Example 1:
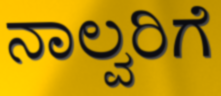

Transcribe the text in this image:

ನಾಲ್ವರಿಗೆ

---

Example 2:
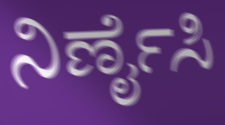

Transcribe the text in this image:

ನಿರ್ಣೈಸಿ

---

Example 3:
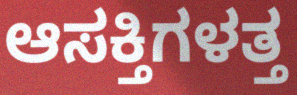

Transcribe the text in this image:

ಆಸಕ್ತಿಗಳತ್ತ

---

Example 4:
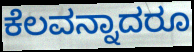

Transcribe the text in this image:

ಕೆಲವನ್ನಾದರೂ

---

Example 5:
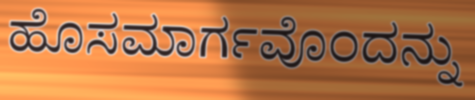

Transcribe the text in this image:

ಹೊಸಮಾರ್ಗವೊಂದನ್ನು